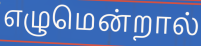
எழுமென்றால்